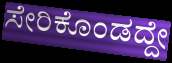
ಸೇರಿಕೊಂಡದ್ದೇ